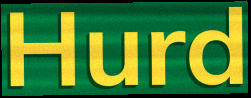
Hurd